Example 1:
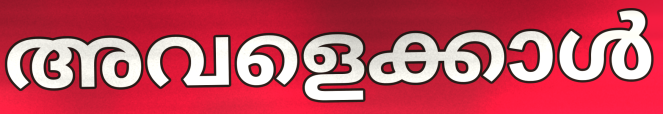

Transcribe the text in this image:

അവളെക്കാൾ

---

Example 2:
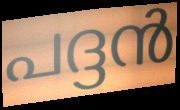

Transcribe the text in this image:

പദ്ദൻ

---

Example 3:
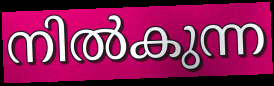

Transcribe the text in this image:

നിൽകുന്ന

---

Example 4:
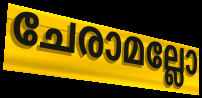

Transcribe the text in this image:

ചേരാമല്ലോ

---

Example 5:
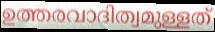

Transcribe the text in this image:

ഉത്തരവാദിത്വമുള്ളത്